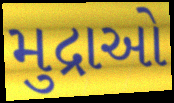
મુદ્રાઓ